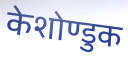
केशोण्डुक